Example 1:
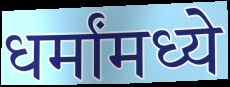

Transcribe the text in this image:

धर्मांमध्ये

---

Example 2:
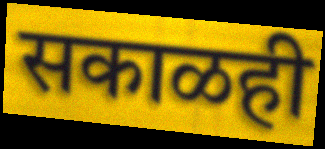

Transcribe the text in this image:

सकाळही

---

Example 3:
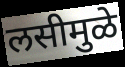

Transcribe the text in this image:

लसीमुळे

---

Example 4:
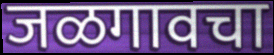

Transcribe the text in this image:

जळगावचा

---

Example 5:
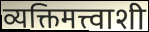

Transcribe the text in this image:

व्यक्तिमत्त्वाशी